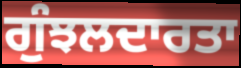
ਗੁੰਝਲਦਾਰਤਾ